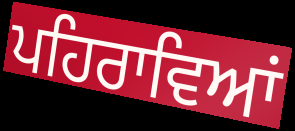
ਪਹਿਰਾਵਿਆਂ